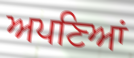
ਅਪਣਿਆਂ